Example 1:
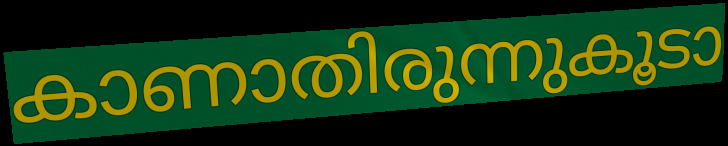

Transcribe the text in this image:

കാണാതിരുന്നുകൂടാ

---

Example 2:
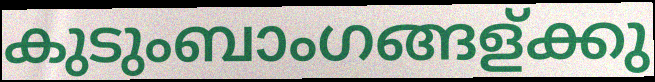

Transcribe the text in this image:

കുടുംബാംഗങ്ങള്ക്കു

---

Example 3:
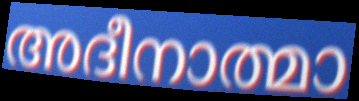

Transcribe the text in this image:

അദീനാത്മാ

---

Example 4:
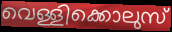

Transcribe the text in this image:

വെള്ളിക്കൊലുസ്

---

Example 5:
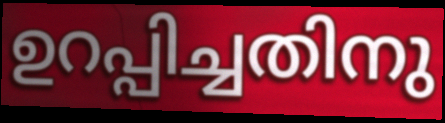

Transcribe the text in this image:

ഉറപ്പിച്ചതിനു